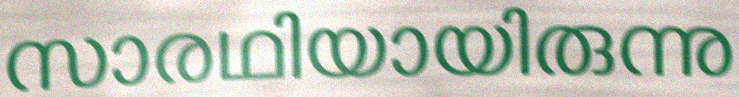
സാരഥിയായിരുന്നു